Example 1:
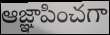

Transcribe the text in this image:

ఆజ్ఞాపించగా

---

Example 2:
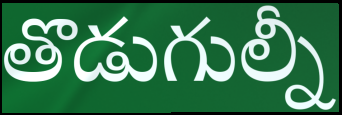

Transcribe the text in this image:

తొడుగుల్నీ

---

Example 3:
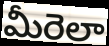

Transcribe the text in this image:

మీరెలా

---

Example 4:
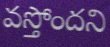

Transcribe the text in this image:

వస్తోందని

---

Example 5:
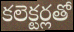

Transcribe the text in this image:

కలెక్టర్లతో